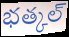
భత్కల్